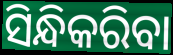
ସିନ୍ଧିକରିବା